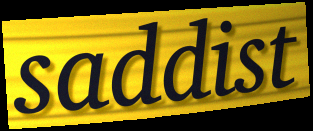
saddist